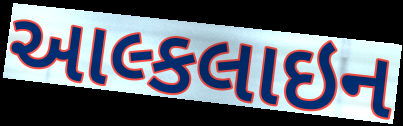
આલ્કલાઇન